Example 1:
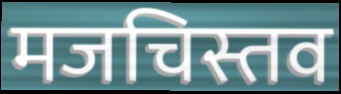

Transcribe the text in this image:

मजचिस्तव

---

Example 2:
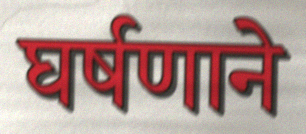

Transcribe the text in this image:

घर्षणाने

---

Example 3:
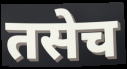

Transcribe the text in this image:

तसेच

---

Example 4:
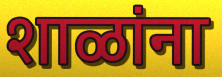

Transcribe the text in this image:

शाळांना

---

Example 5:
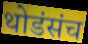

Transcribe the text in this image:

थोडंसंच